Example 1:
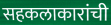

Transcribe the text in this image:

सहकलाकारांची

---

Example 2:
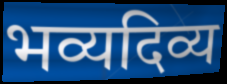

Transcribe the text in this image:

भव्यदिव्य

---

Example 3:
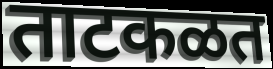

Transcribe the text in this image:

ताटकळत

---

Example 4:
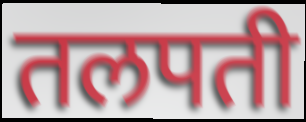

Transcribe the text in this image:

तलपती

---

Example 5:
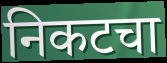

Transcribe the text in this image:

निकटचा